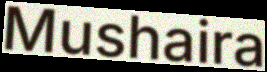
Mushaira